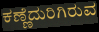
ಕಣ್ಣೆದುರಿಗಿರುವ